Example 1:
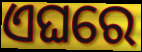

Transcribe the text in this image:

ଏଘରେ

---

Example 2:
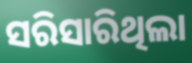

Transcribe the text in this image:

ସରିସାରିଥିଲା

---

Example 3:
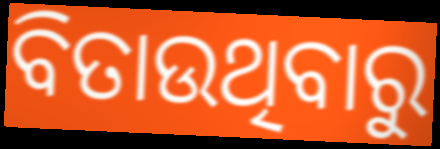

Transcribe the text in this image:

ବିତାଉଥିବାରୁ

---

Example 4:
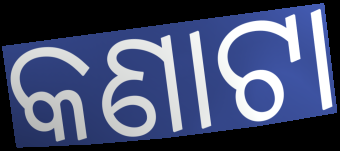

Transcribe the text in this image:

କଣାଟା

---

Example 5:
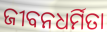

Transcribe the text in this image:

ଜୀବନଧର୍ମିତା